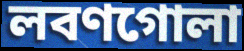
লবণগোলা